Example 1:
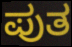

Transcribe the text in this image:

ಪುತ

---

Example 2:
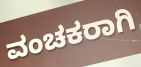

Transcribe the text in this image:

ವಂಚಕರಾಗಿ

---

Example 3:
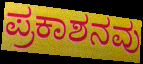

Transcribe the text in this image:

ಪ್ರಕಾಶನವು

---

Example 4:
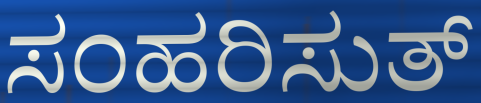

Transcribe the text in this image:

ಸಂಹರಿಸುತ್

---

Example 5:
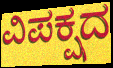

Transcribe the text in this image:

ವಿಪಕ್ಷದ